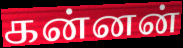
கன்னன்